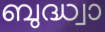
ബുദ്ധ്വാ